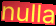
nulla